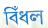
বিঁধল